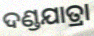
ଦଣ୍ଡଯାତ୍ରା